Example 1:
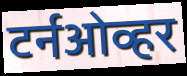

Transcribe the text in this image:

टर्नओव्हर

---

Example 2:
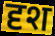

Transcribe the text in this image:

दृश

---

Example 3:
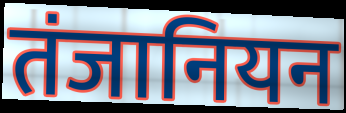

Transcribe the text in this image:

तंजानियन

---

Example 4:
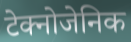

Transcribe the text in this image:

टेक्नोजेनिक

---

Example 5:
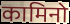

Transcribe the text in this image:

कामिनो